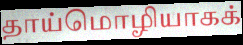
தாய்மொழியாகக்